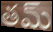
తమ్